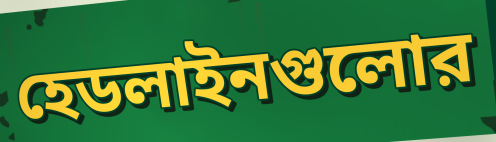
হেডলাইনগুলোর